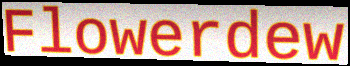
Flowerdew